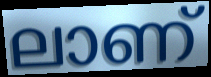
ലാണ്